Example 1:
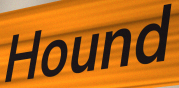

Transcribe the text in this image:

Hound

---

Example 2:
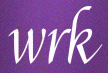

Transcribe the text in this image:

wrk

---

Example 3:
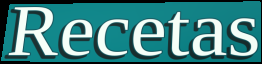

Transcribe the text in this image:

Recetas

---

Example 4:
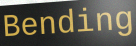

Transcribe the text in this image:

Bending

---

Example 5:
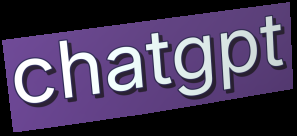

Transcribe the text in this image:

chatgpt